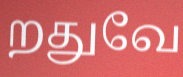
றதுவே